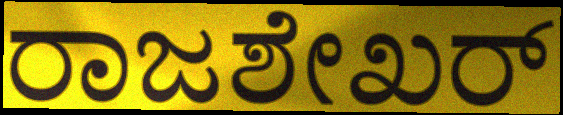
ರಾಜಶೇಖರ್